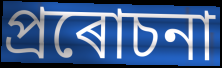
প্ৰৰোচনা